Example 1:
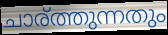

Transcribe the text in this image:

ചാര്ത്തുന്നതും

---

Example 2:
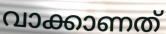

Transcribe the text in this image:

വാക്കാണത്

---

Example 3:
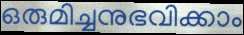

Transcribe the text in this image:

ഒരുമിച്ചനുഭവിക്കാം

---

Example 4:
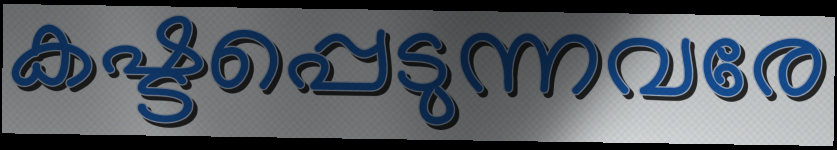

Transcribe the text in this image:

കഷ്ടപ്പെടുന്നവരേ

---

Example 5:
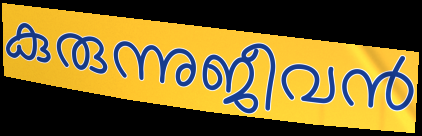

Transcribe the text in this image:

കുരുന്നുജീവൻ